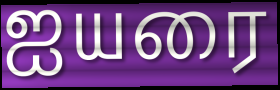
ஐயரை